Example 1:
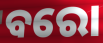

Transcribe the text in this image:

ବରୋ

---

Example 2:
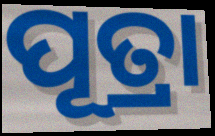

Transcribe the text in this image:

ପୂତ୍ରା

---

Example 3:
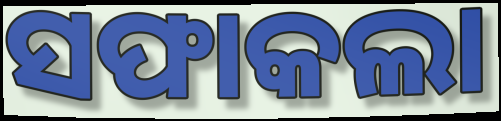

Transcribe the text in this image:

ସଫାକଲା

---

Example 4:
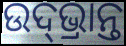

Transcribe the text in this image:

ଉଦ୍‌ଭ୍ରାନ୍ତ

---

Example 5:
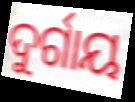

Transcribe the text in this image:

ଦୁର୍ଗାୟ